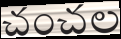
చంచల